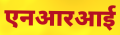
एनआरआई